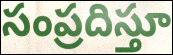
సంప్రదిస్తూ